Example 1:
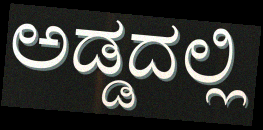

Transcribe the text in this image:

ಅಡ್ಡದಲ್ಲಿ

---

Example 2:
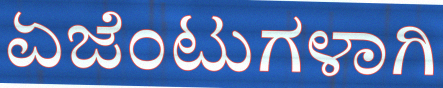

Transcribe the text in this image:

ಏಜೆಂಟುಗಳಾಗಿ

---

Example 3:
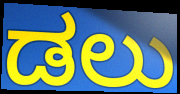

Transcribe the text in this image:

ಡಲು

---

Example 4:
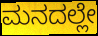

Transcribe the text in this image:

ಮನದಲ್ಲೇ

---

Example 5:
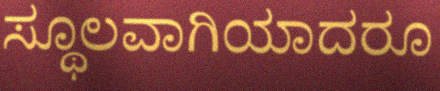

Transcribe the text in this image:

ಸ್ಥೂಲವಾಗಿಯಾದರೂ